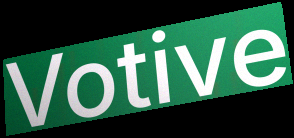
Votive